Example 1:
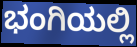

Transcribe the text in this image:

ಭಂಗಿಯಲ್ಲಿ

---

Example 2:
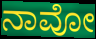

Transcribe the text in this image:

ನಾವೋ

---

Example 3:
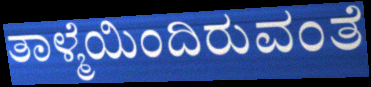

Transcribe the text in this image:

ತಾಳ್ಮೆಯಿಂದಿರುವಂತೆ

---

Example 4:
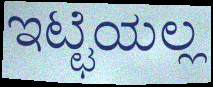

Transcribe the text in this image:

ಇಟ್ಟೆಯಲ್ಲ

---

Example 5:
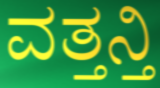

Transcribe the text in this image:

ವತ್ತನ್ತಿ